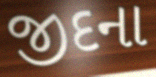
જીદના